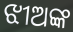
ଝୀଅଙ୍କ